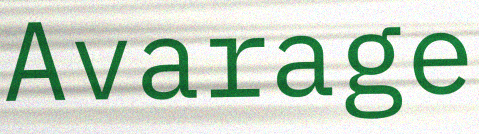
Avarage